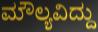
ಮೌಲ್ಯವಿದ್ದು